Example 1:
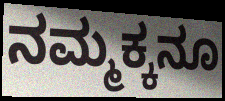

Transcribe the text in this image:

ನಮ್ಮಕ್ಕನೂ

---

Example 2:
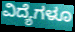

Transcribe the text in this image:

ವಿದ್ಯೆಗಳೂ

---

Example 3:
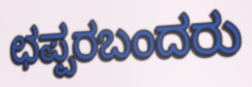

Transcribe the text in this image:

ಛಪ್ಪರಬಂದರು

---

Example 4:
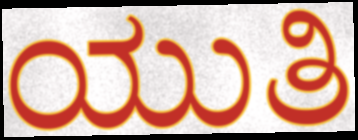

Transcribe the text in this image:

ಯುತಿ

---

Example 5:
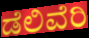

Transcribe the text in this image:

ಡೆಲಿವೆರಿ